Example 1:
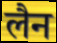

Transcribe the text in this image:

लैन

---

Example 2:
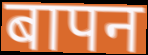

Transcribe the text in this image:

बापन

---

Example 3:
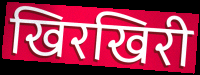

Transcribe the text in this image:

खिरखिरी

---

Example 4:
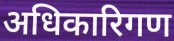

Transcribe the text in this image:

अधिकारिगण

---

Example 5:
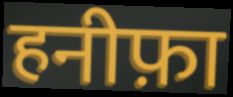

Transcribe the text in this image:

हनीफ़ा